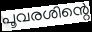
പൂവരശിന്റെ